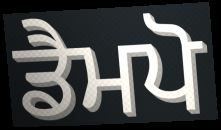
ਡੈਮਪੋ